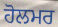
ਹੋਲਮਰ